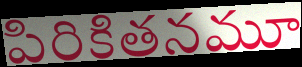
పిరికితనమూ